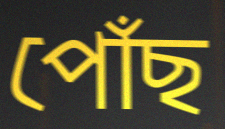
পোঁছ